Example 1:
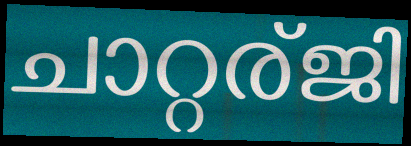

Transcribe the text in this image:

ചാറ്റര്ജി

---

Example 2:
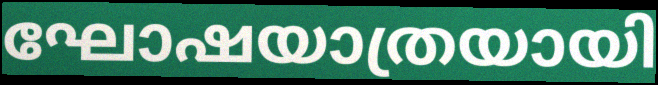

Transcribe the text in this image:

ഘോഷയാത്രയായി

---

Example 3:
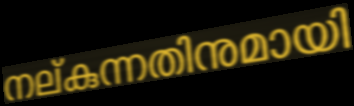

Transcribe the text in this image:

നല്‌കുന്നതിനുമായി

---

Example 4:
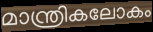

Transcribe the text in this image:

മാന്ത്രികലോകം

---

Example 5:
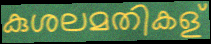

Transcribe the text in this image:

കുശലമതികള്